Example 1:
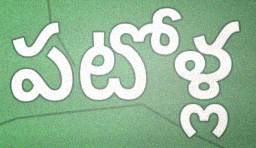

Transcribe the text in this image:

పటోళ్ల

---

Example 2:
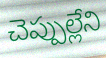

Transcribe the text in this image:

చెప్పుల్లేని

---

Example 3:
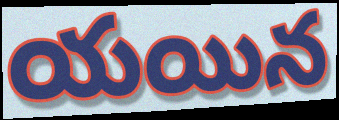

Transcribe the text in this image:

యయిన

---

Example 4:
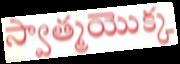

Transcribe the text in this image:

స్వాత్మయొక్క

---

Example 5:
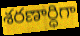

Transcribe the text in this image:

శరణార్ధిగా